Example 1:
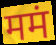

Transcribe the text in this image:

ममं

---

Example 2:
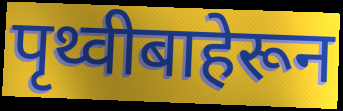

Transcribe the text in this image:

पृथ्वीबाहेरून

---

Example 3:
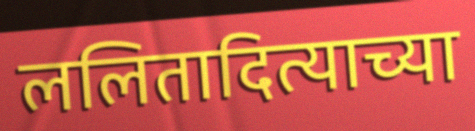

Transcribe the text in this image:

ललितादित्याच्या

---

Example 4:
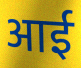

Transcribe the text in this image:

आई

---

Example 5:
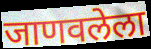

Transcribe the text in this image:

जाणवलेला